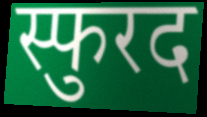
स्फुरद